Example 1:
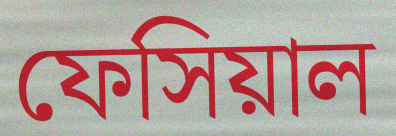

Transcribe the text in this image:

ফেসিয়াল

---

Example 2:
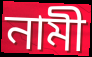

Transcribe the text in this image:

নামী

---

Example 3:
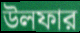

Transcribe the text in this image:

উলফার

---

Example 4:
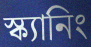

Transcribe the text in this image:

স্ক্যানিং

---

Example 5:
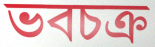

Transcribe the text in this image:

ভবচক্র